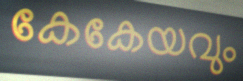
കേകേയവും